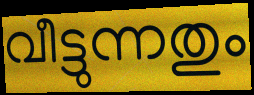
വീട്ടുന്നതും